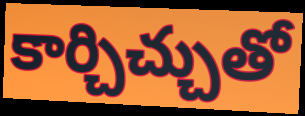
కార్చిచ్చుతో